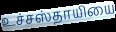
உச்சஸ்தாயியை